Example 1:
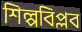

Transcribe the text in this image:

শিল্পবিপ্লব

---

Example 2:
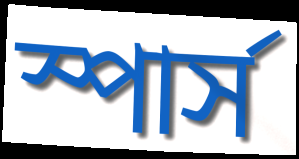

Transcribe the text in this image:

স্পার্স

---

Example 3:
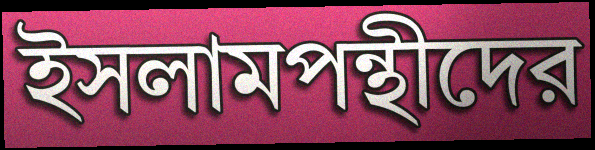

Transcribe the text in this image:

ইসলামপন্থীদের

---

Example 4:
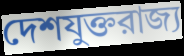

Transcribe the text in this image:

দেশযুক্তরাজ্য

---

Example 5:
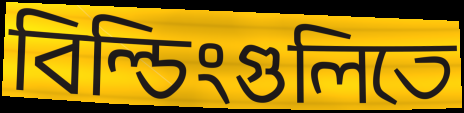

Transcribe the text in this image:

বিল্ডিংগুলিতে